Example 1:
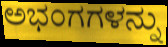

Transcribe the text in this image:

ಅಭಂಗಗಳನ್ನು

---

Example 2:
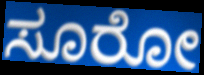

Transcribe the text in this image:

ಸೂರೋ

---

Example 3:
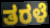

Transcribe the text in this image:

ತರಳೆ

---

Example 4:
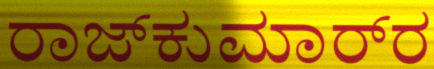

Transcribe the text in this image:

ರಾಜ್‌ಕುಮಾರ್‌ರ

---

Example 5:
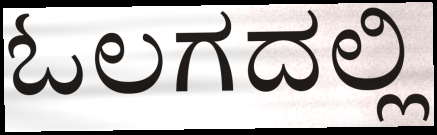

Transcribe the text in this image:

ಓಲಗದಲ್ಲಿ